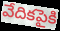
వేదికపైకి